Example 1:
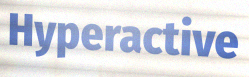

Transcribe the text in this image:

Hyperactive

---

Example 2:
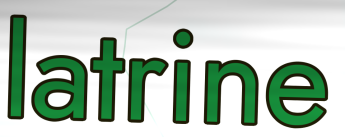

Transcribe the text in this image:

latrine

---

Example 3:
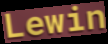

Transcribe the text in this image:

Lewin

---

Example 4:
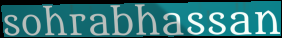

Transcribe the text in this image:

sohrabhassan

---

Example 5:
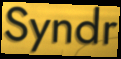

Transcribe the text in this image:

Syndr